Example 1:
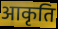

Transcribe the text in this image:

आकृति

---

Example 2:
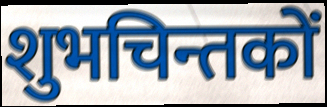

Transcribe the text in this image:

शुभचिन्तकों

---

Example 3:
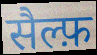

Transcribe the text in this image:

सैल्फ़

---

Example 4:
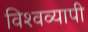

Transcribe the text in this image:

विश्‍वव्यापी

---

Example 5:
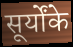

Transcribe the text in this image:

सूर्योंके